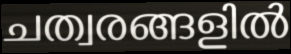
ചത്വരങ്ങളിൽ